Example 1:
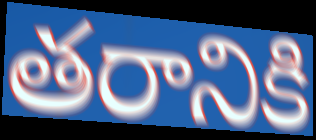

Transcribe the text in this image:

తరానికి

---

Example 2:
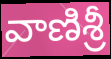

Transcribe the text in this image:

వాణిశ్రీ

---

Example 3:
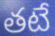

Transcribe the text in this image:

తటే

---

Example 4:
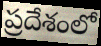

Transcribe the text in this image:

ప్రదేశంలో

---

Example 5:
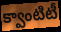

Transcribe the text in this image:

క్వాంటిటీ